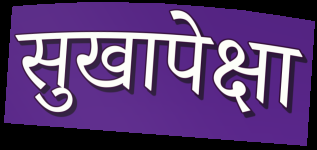
सुखापेक्षा